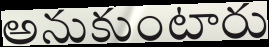
అనుకుంటారు